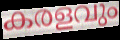
കരളവും